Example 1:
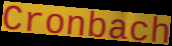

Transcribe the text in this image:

Cronbach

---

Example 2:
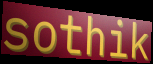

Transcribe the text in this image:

sothik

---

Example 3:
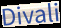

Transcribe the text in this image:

Divali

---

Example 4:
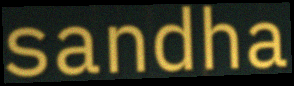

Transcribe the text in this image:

sandha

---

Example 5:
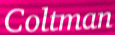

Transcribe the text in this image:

Coltman